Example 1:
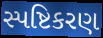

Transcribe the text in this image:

સ્પષ્ટિકરણ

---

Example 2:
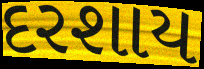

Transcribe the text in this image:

દરશાય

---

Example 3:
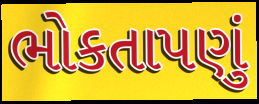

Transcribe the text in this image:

ભોકતાપણું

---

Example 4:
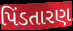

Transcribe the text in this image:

પિંડતારણ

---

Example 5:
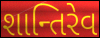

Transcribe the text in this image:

શાન્તિરેવ